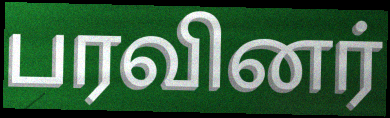
பரவினர்